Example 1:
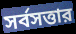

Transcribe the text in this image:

সর্বসত্তার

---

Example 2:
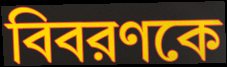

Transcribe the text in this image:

বিবরণকে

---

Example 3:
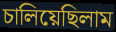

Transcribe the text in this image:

চালিয়েছিলাম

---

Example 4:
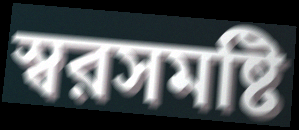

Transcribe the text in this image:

স্বরসমষ্টি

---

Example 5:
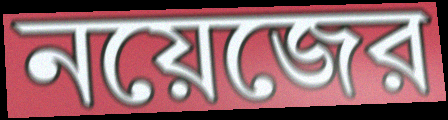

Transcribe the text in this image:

নয়েজের